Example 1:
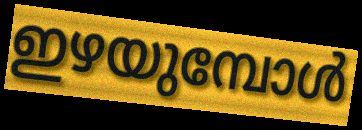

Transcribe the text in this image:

ഇഴയുമ്പോൾ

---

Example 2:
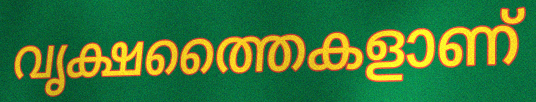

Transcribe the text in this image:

വൃക്ഷത്തൈകളാണ്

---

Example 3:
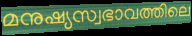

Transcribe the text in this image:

മനുഷ്യസ്വഭാവത്തിലെ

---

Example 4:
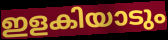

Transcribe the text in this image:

ഇളകിയാടും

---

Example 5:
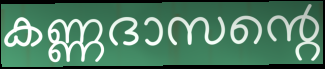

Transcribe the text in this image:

കണ്ണദാസന്റെ